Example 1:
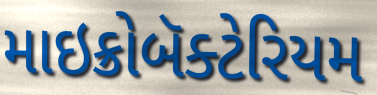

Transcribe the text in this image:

માઇક્રોબૅક્ટેરિયમ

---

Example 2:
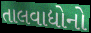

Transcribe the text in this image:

તાલવાદ્યોનો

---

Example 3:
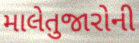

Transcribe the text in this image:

માલેતુજારોની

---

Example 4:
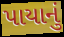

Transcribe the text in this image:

પાયાનું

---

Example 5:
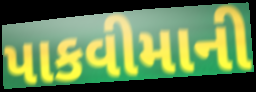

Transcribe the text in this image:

પાકવીમાની